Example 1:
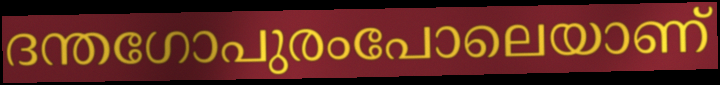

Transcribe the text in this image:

ദന്തഗോപുരംപോലെയാണ്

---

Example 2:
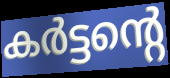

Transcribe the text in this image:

കർട്ടന്റെ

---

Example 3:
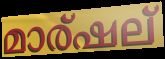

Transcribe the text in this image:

മാര്ഷല്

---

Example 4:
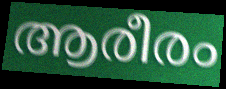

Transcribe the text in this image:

ആരീരം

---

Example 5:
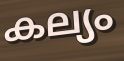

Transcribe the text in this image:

കല്യം